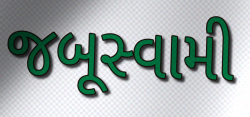
જબૂસ્વામી